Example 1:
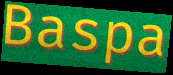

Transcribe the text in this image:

Baspa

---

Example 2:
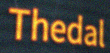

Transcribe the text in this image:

Thedal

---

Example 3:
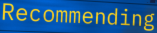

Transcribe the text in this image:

Recommending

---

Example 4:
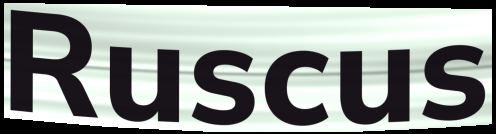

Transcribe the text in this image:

Ruscus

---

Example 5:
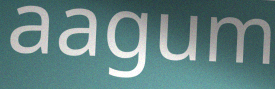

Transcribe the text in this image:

aagum